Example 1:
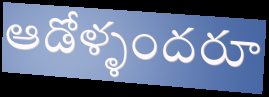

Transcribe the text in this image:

ఆడోళ్ళందరూ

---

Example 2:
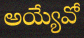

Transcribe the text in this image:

అయ్యేవో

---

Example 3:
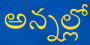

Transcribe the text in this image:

అన్నల్లో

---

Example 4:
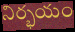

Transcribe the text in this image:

నిర్భయం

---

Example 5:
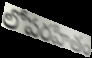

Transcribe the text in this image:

లోపరహితం